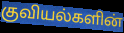
குவியல்களின்